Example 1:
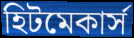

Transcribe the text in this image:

হিটমেকার্স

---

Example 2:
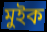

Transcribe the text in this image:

মুইক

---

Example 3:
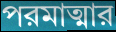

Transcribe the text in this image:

পরমাত্মার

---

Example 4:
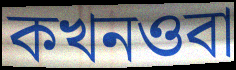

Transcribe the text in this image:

কখনওবা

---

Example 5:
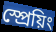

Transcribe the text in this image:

স্প্রেয়িং